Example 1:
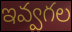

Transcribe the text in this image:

ఇవ్వగల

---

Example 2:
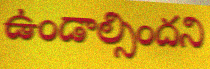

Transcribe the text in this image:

ఉండాల్సిందని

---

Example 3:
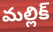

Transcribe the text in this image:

మల్లిక్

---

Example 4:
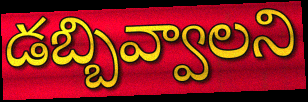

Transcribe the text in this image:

డబ్బివ్వాలని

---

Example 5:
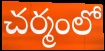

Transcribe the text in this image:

చర్మంలో